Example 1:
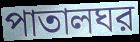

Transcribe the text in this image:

পাতালঘর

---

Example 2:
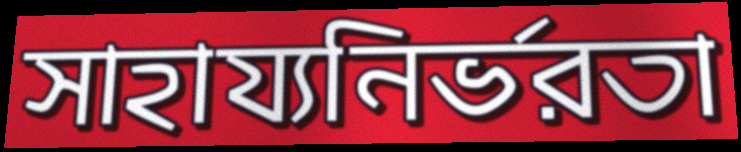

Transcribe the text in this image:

সাহায্যনির্ভরতা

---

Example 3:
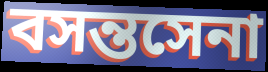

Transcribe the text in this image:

বসন্তসেনা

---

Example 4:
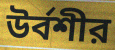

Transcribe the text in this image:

উর্বশীর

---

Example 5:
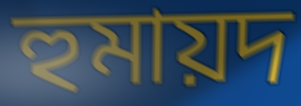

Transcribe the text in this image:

হুমায়দ